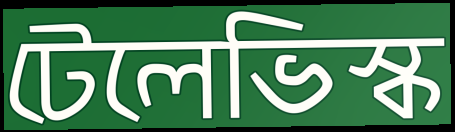
টেলেভিস্ক